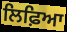
ਲਿਫ਼ਿਆ